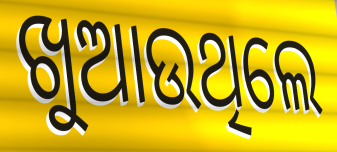
ଖୁଆଉଥିଲେ